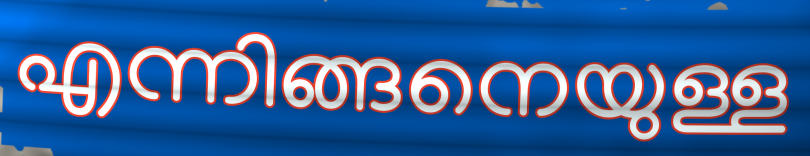
എന്നിങ്ങനെയുള്ള